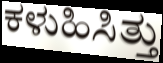
ಕಳುಹಿಸಿತ್ತು